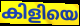
കിളിയെ